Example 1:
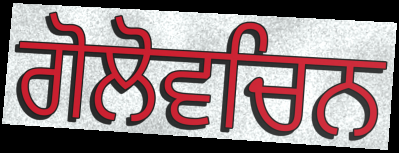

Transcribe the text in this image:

ਗੋਲੋਵਚਿਨ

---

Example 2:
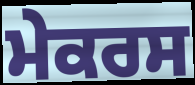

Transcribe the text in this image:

ਮੇਕਰਸ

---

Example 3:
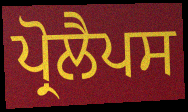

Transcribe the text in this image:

ਪ੍ਰੋਲੈਪਸ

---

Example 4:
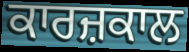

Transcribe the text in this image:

ਕਾਰਜ਼ਕਾਲ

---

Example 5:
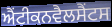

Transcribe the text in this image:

ਐਂਟੀਕਨਵੈਲਸੈਂਟਸ